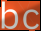
bc